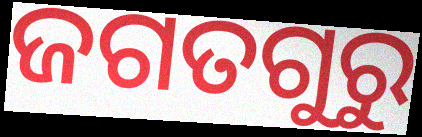
ଜଗତଗୁରୁ